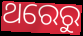
ଥରେରୁ